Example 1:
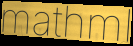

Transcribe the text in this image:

mathml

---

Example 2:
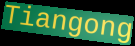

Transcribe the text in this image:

Tiangong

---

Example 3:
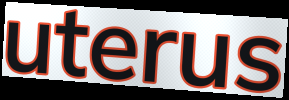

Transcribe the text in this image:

uterus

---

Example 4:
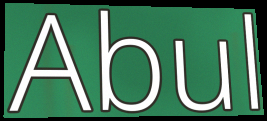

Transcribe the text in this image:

Abul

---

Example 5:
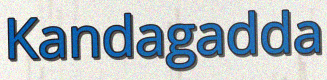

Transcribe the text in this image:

Kandagadda